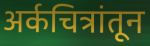
अर्कचित्रांतून